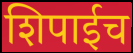
शिपाईच